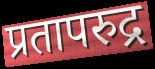
प्रतापरुद्र